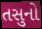
તસુનો